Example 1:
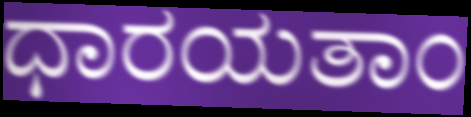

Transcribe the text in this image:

ಧಾರಯತಾಂ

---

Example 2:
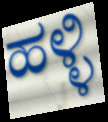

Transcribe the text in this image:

ಹಳ್ಳಿ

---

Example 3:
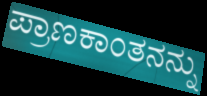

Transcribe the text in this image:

ಪ್ರಾಣಕಾಂತನನ್ನು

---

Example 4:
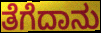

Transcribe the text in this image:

ತೆಗೆದಾನು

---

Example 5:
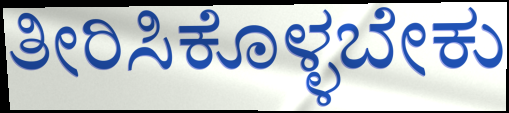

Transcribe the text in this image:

ತೀರಿಸಿಕೊಳ್ಳಬೇಕು